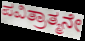
ಪವಿತ್ರಾತ್ಮನೇ